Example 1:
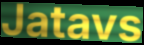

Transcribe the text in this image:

Jatavs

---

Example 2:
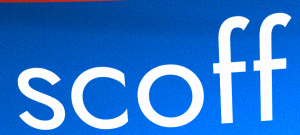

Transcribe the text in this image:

scoff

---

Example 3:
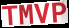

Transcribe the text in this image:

TMVP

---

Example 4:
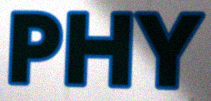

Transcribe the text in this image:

PHY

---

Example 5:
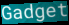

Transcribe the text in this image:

Gadget